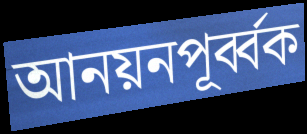
আনয়নপূর্ব্বক